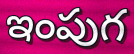
ఇంపుగ